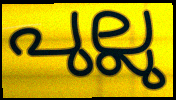
പുല്ലു